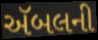
ઍબલની